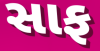
સાફ